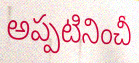
అప్పటినించీ